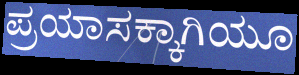
ಪ್ರಯಾಸಕ್ಕಾಗಿಯೂ